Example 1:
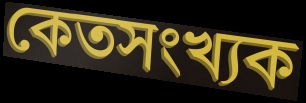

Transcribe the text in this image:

কেতসংখ্যক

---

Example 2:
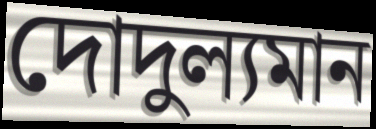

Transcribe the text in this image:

দোদুল্যমান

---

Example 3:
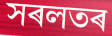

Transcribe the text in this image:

সৰলতৰ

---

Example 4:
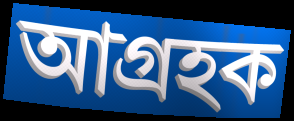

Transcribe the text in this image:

আগ্ৰহক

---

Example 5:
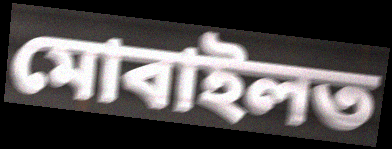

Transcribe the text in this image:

মোবাইলত